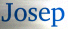
Josep